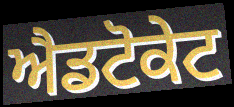
ਐਡਟੋਕੇਟ